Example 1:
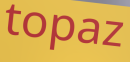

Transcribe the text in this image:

topaz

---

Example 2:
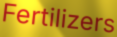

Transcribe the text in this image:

Fertilizers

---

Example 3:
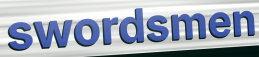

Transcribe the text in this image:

swordsmen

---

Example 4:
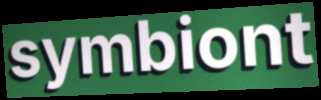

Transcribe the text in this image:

symbiont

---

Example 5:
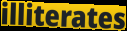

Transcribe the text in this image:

illiterates